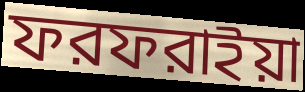
ফরফরাইয়া